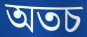
অতচ